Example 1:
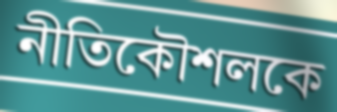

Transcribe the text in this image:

নীতিকৌশলকে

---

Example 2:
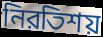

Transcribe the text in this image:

নিরতিশয়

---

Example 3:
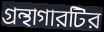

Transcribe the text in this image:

গ্রন্থাগারটির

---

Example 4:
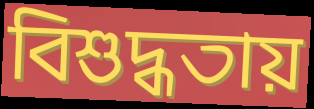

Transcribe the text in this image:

বিশুদ্ধতায়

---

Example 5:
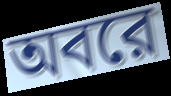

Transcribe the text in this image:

অবরে